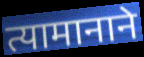
त्यामानाने